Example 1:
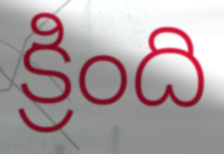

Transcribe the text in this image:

క్రింది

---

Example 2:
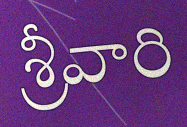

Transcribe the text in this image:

శ్రీవారి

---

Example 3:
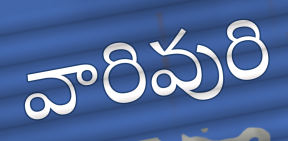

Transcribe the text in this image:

వారివురి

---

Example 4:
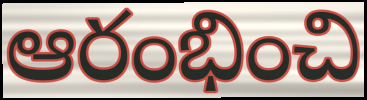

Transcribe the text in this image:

ఆరంభించి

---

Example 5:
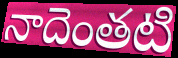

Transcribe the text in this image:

నాదెంతటి